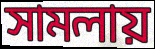
সামলায়